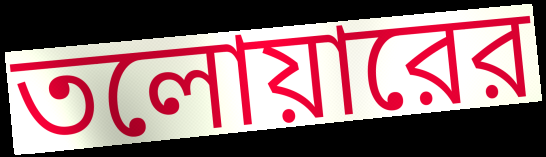
তলোয়ারের